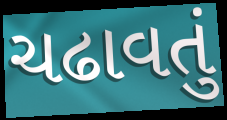
ચઢાવતું